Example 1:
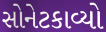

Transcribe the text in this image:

સોનેટકાવ્યો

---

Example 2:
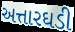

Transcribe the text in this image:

અત્તારઘડી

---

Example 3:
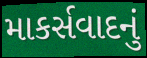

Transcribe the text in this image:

માકર્સવાદનું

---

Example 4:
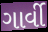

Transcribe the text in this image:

ગાર્વી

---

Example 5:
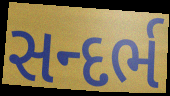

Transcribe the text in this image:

સન્દર્ભ